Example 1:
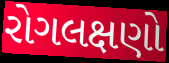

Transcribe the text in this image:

રોગલક્ષણો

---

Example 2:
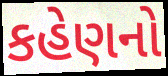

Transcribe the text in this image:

કહેણનો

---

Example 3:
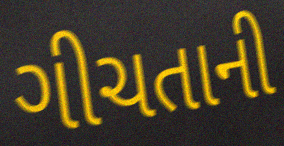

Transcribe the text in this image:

ગીચતાની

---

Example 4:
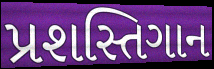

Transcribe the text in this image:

પ્રશસ્તિગાન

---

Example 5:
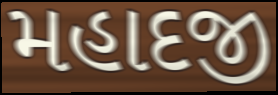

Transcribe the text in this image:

મહાદજી